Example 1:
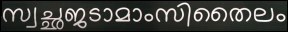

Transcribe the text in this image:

സ്വച്ഛജടാമാംസിതൈലം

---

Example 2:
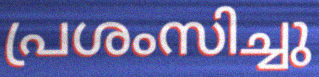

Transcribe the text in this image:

പ്രശംസിച്ചു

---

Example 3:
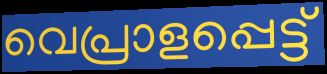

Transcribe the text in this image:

വെപ്രാളപ്പെട്ട്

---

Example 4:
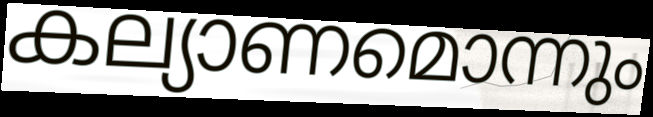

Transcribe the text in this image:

കല്യാണമൊന്നും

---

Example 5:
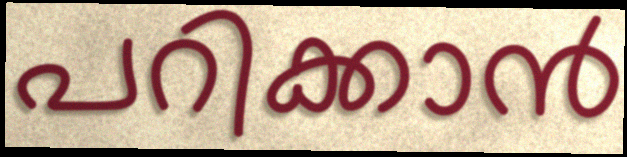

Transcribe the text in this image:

പറിക്കാൻ